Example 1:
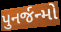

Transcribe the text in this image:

પુનર્જન્મો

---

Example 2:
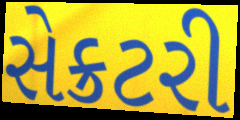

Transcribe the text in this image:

સેક્રટરી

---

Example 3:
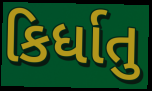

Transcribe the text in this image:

કિર્ધાતુ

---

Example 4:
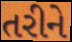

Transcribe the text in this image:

તરીને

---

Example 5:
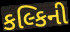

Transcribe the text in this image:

કલ્કિની